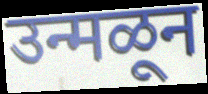
उन्मळून